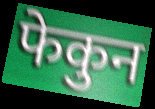
फेकुन